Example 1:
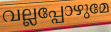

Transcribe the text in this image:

വല്ലപ്പോഴുമേ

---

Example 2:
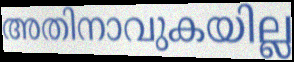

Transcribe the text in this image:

അതിനാവുകയില്ല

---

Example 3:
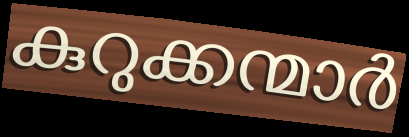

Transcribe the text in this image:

കുറുക്കന്മാർ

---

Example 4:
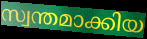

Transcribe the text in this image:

സ്വന്തമാക്കിയ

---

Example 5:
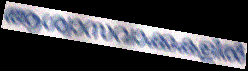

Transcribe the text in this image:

ആശ്വാസവാക്കുകളിൽ